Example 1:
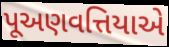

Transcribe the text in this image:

પૂઅણવત્તિયાએ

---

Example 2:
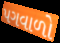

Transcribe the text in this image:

પગવાળો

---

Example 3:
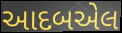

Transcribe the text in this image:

આદબએલ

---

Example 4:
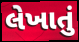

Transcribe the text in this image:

લેખાતું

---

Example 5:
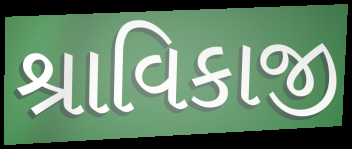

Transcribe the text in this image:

શ્રાવિકાજી